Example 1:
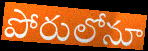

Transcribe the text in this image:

పోరులోనూ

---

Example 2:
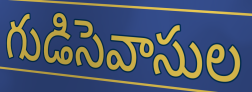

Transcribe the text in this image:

గుడిసెవాసుల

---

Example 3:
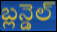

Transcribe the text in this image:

బ్లన్డెల్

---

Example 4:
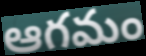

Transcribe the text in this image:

ఆగమం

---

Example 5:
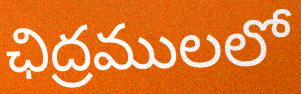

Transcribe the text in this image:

ఛిద్రములలో